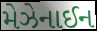
મેઝેનાઈન